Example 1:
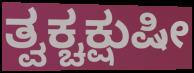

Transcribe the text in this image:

ತ್ವಕ್ಚಕ್ಷುಷೀ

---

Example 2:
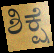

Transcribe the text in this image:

ಶಿಕ್ಷೆ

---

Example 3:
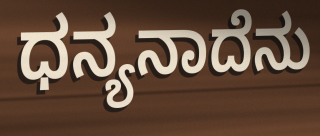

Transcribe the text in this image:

ಧನ್ಯನಾದೆನು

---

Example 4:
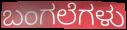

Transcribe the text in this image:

ಬಂಗಲೆಗಳು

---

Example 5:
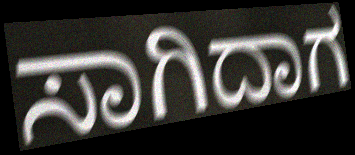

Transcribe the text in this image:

ಸಾಗಿದಾಗ